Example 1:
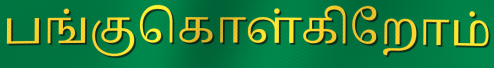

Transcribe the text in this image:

பங்குகொள்கிறோம்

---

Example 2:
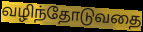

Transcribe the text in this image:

வழிந்தோடுவதை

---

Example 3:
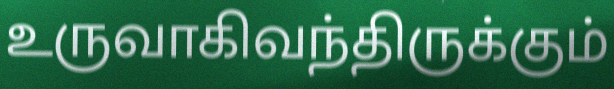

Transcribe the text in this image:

உருவாகிவந்திருக்கும்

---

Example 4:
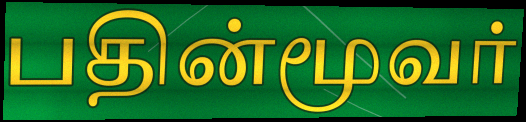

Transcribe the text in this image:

பதின்மூவர்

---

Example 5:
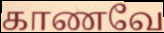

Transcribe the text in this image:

காணவே